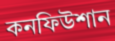
কনফিউশান